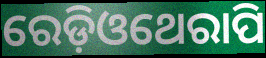
ରେଡ଼ିଓଥେରାପି